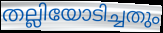
തല്ലിയോടിച്ചതും